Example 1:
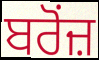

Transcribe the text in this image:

ਬਰੋਂਜ਼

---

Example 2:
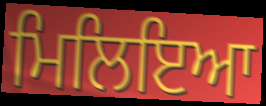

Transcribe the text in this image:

ਮਿਲਿਇਆ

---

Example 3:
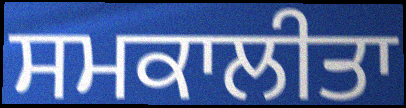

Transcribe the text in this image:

ਸਮਕਾਲੀਤਾ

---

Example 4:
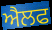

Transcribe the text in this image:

ਐਲਫ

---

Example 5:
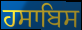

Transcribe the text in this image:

ਹਸਾਬਿਸ